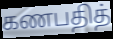
கணபதித்